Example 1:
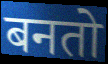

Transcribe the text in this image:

बनतो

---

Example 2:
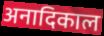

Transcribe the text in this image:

अनादिकाल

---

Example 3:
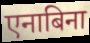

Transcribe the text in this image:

एनाबिना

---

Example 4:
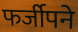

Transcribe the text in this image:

फर्जीपने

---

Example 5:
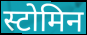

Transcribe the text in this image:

स्टोमिन